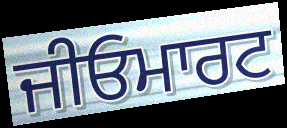
ਜੀਓਮਾਰਟ